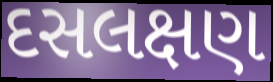
દસલક્ષણ